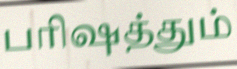
பரிஷத்தும்